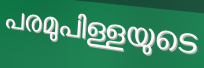
പരമുപിള്ളയുടെ